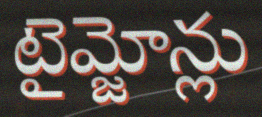
టైమ్జోన్లు